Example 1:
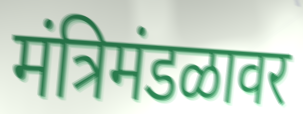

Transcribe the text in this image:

मंत्रिमंडळावर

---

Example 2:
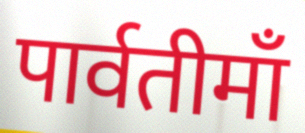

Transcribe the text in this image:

पार्वतीमाँ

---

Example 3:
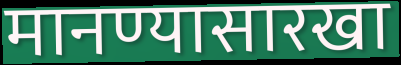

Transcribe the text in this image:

मानण्यासारखा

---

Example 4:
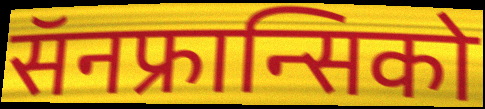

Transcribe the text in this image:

सॅनफ्रान्सिको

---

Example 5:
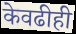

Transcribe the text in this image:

केवढीही